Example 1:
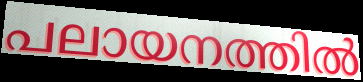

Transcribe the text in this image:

പലായനത്തിൽ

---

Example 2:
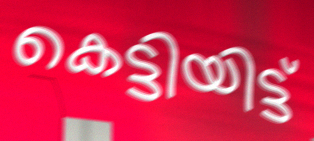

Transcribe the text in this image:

കെട്ടിയിട്ട്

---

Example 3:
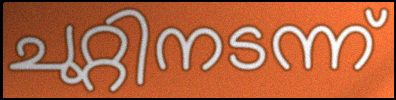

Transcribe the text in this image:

ചുറ്റിനടന്ന്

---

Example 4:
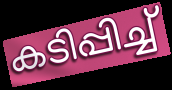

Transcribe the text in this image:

കടിപ്പിച്ച്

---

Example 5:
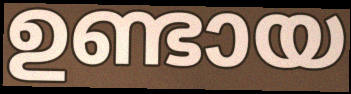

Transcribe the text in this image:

ഉണ്ടായ